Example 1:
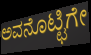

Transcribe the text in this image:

ಅವನೊಟ್ಟಿಗೇ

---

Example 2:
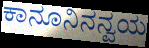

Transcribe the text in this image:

ಕಾನೂನಿನನ್ವಯ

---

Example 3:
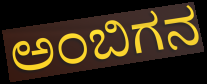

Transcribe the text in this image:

ಅಂಬಿಗನ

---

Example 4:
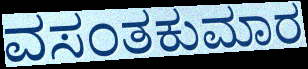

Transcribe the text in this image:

ವಸಂತಕುಮಾರ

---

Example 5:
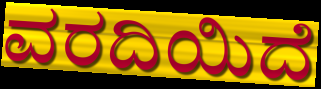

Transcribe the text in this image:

ವರದಿಯಿದೆ